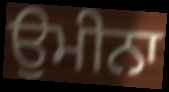
ਉਮੀਨਾ